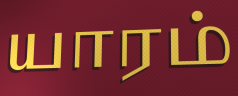
யாரம்